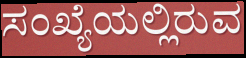
ಸಂಖ್ಯೆಯಲ್ಲಿರುವ